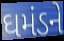
ઘમંડને